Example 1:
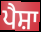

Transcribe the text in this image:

ਪੈਸ਼ਾ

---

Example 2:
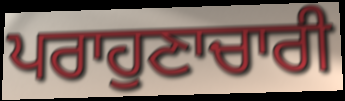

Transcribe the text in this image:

ਪਰਾਹੁਣਾਚਾਰੀ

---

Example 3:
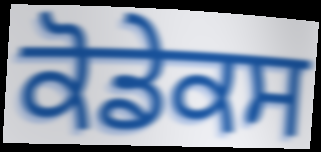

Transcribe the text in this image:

ਕੋਡੇਕਸ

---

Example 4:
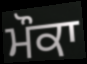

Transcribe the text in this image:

ਮੌਕਾ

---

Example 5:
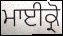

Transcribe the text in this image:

ਮਾਈਕ੍ਰੋ